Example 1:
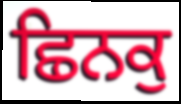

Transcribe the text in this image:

ਛਿਨਕੁ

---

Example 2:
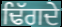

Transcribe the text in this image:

ਢਿੱਗਦੇ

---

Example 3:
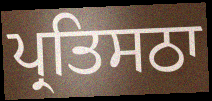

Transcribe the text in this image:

ਪ੍ਰਤਿਸਠਾ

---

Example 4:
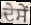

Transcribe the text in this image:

ਦੇਸੇਂ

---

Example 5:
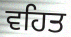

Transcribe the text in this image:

ਵਹਿਤ